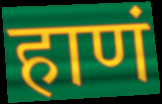
हाणं